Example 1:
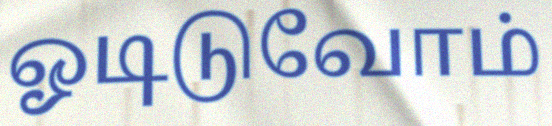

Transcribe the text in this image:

ஓடிடுவோம்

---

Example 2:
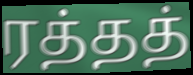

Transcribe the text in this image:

ரத்தத்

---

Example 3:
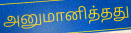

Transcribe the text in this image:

அனுமானித்தது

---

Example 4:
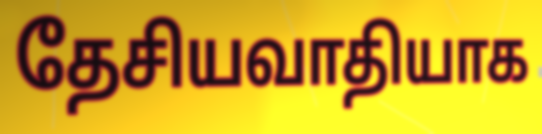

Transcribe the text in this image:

தேசியவாதியாக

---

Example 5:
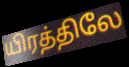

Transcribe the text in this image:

யிரத்திலே